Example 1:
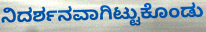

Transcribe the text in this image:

ನಿದರ್ಶನವಾಗಿಟ್ಟುಕೊಂಡು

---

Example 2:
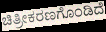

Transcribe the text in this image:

ಚಿತ್ರೀಕರಣಗೊಂಡಿದೆ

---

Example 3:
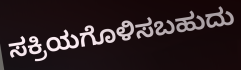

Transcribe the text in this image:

ಸಕ್ರಿಯಗೊಳಿಸಬಹುದು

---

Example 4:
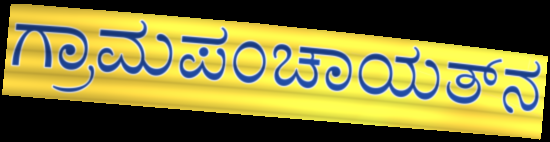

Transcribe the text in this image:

ಗ್ರಾಮಪಂಚಾಯತ್‌ನ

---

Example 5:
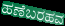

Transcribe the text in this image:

ಹಣೆಬರಹವ